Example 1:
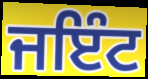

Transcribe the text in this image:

ਜਇੰਟ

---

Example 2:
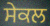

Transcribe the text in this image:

ਸੇਕਲ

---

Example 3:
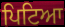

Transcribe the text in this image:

ਪਿਟਿਆ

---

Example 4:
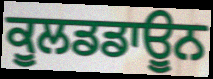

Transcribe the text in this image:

ਕੂਲਡਡਾਊਨ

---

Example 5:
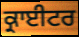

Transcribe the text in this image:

ਕ੍ਰਾਈਟਰ